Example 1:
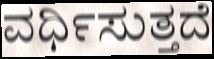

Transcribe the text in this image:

ವರ್ಧಿಸುತ್ತದೆ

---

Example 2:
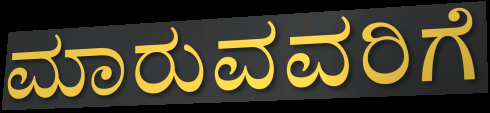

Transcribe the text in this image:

ಮಾರುವವರಿಗೆ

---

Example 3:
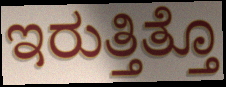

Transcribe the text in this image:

ಇರುತ್ತಿತ್ತೊ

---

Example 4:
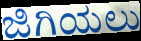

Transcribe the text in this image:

ಜಿಗಿಯಲು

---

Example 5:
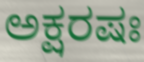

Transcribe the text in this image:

ಅಕ್ಷರಷಃ